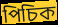
পিচিক